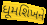
ધૂમશિખને